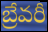
బ్రేవరీ